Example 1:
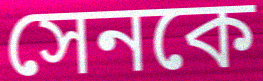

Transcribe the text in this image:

সেনকে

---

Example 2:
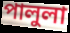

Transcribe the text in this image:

পালুলা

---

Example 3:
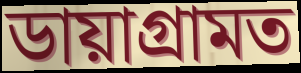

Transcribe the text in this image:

ডায়াগ্ৰামত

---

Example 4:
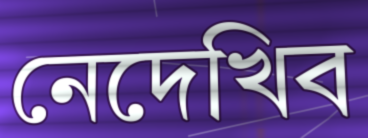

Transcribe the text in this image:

নেদেখিব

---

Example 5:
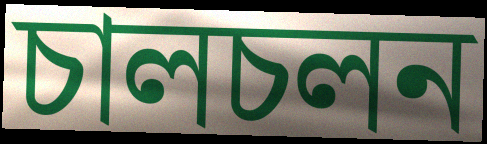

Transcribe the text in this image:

চালচলন